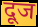
दूज